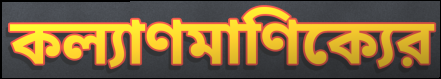
কল্যাণমাণিক্যের